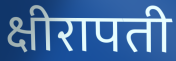
क्षीरापती